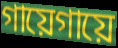
গায়েগায়ে